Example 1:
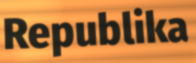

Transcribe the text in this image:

Republika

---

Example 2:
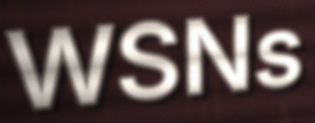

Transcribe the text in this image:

WSNs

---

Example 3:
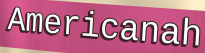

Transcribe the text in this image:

Americanah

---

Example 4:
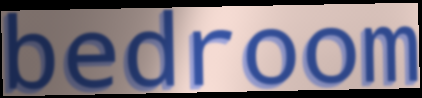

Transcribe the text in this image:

bedroom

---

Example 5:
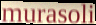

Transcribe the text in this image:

murasoli